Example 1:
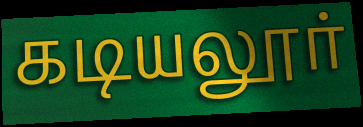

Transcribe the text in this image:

கடியலூர்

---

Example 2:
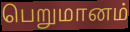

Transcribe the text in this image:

பெறுமானம்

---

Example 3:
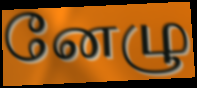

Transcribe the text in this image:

னேழு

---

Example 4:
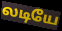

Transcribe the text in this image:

லடியே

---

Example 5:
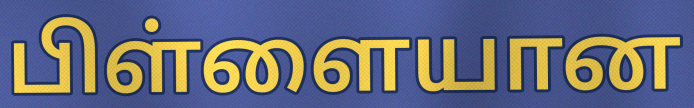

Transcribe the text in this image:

பிள்ளையான